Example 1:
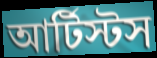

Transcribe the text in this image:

আর্টিস্টস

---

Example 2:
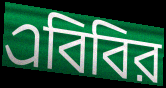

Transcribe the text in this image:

এবিবির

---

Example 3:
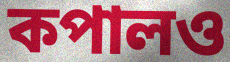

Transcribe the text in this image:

কপালও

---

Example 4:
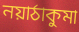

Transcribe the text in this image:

নয়াঠাকুমা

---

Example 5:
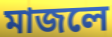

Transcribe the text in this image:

মাজলে